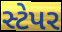
સ્ટેપર